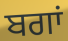
ਬਗਾਂ